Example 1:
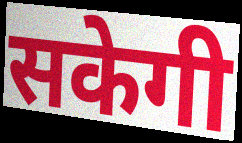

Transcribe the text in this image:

सकेगी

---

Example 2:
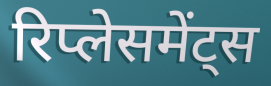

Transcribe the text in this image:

रिप्लेसमेंट्स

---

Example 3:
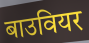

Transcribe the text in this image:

बाउवियर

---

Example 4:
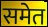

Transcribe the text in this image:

समेत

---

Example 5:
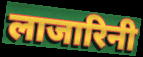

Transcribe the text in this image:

लाजारिनी